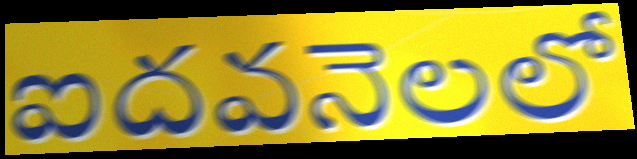
ఐదవనెలలో